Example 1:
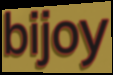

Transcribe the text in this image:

bijoy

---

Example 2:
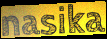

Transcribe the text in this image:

nasika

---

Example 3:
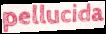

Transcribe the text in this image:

pellucida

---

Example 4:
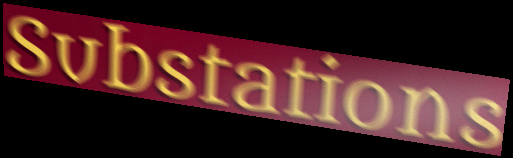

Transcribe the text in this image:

Substations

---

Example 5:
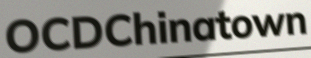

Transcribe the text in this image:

OCDChinatown